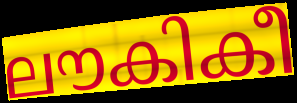
ലൗകികീ